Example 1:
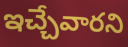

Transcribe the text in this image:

ఇచ్చేవారని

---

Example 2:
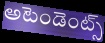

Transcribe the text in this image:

అటెండెంట్స్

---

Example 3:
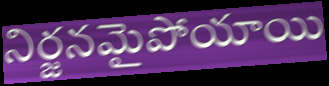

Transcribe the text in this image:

నిర్జనమైపోయాయి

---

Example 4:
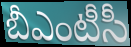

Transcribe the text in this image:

బీఎంటీసీ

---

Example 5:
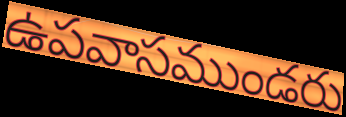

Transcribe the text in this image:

ఉపవాసముండరు